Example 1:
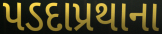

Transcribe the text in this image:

પડદાપ્રથાના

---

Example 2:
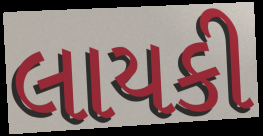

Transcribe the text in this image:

લાયકી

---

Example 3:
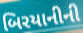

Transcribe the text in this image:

બિરયાનીની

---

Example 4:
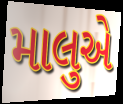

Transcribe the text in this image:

માલુએ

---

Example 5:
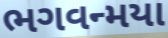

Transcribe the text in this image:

ભગવન્મયા